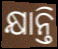
କ୍ଷାନ୍ତି